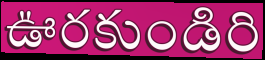
ఊరకుండిరి